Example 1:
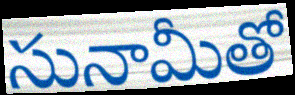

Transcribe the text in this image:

సునామీతో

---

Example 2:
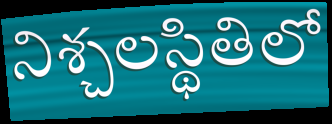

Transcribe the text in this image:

నిశ్చలస్థితిలో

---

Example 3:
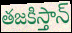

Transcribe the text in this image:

తజకిస్తాన్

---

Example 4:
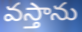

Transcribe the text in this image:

వస్తాను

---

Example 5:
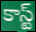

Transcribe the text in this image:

కాస్ట్